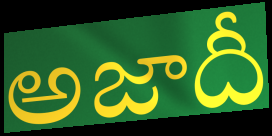
అజాదీ